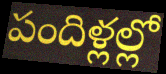
పందిళ్లల్లో